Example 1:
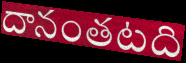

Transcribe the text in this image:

దానంతటది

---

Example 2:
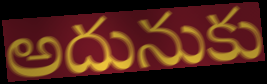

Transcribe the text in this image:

అదునుకు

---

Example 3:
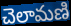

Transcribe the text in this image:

చెలామణి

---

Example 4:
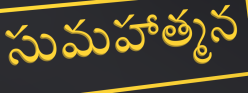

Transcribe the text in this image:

సుమహాత్మన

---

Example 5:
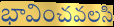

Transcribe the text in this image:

భావించవలసి